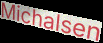
Michalsen